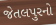
જેતલપુરનો